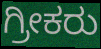
ಗ್ರೀಕರು